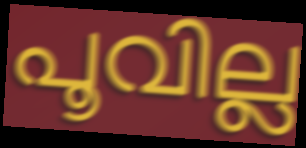
പൂവില്ല